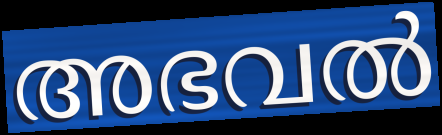
അഭവൽ